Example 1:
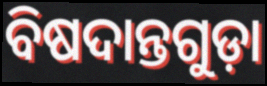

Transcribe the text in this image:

ବିଷଦାନ୍ତଗୁଡ଼ା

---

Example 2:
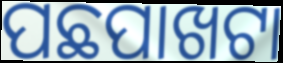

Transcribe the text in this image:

ପଛପାଖଟା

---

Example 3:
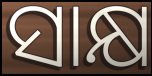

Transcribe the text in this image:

ସାକ୍ଷ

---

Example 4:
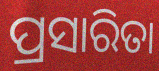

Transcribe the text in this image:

ପ୍ରସାରିତା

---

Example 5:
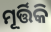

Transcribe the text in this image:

ମୂର୍ତ୍ତିକି